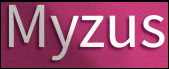
Myzus